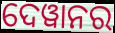
ଦେୱାନର